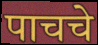
पाचचे